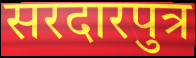
सरदारपुत्र